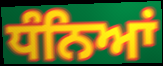
ਧੰਨਿਆਂ